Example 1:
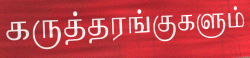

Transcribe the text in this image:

கருத்தரங்குகளும்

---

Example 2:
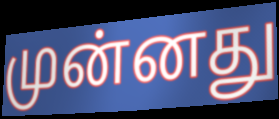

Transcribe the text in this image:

முன்னது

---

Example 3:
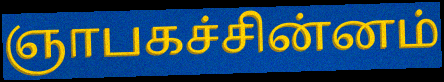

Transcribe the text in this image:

ஞாபகச்சின்னம்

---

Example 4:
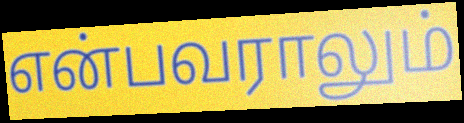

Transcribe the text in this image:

என்பவராலும்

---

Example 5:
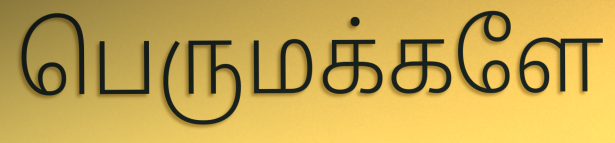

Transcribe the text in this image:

பெருமக்களே